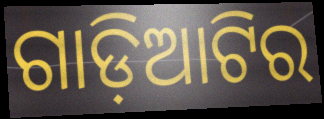
ଗାଡ଼ିଆଟିର